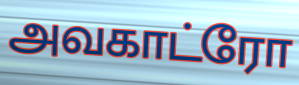
அவகாட்ரோ